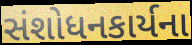
સંશોધનકાર્યના